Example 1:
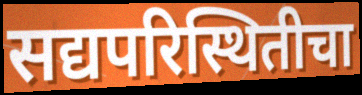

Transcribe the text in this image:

सद्यपरिस्थितीचा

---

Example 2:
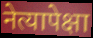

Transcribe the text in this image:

नेत्यापेक्षा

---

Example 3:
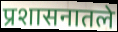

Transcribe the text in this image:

प्रशासनातले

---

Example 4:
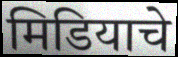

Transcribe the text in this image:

मिडियाचे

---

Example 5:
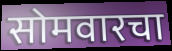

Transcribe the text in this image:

सोमवारचा